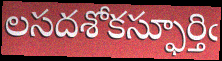
లసదశోకస్ఫూర్తిఁ